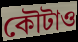
কৌটাও